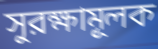
সুরক্ষামূলক